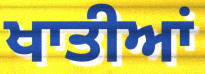
ਖਾਤੀਆਂ